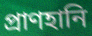
প্রাণহানি